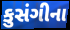
કુસંગીના